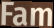
Fam